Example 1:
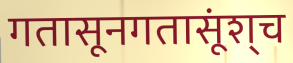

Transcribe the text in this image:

गतासूनगतासूंश्च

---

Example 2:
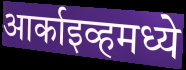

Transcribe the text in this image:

आर्काइव्हमध्ये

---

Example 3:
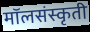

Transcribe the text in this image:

मॉलसंस्कृती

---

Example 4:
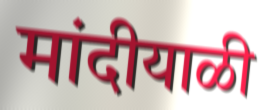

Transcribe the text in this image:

मांदीयाळी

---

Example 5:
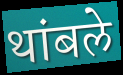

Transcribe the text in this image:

थांबले